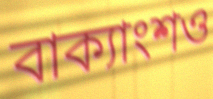
বাক্যাংশও